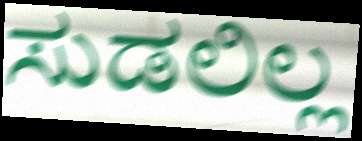
ಸುಡಲಿಲ್ಲ